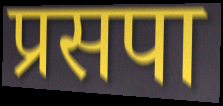
प्रसपा